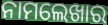
ନାମଲେଖାର